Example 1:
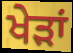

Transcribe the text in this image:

ਖੇੜਾਂ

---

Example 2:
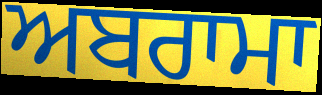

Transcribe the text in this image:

ਅਬਰਾਮਾ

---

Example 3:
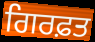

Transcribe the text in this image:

ਗਿਰਫ਼ਤ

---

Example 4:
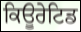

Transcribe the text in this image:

ਕਿਊਰੇਟਿਡ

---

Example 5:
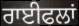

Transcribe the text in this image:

ਰਾਈਫਲਾਂ